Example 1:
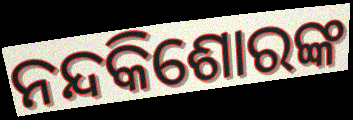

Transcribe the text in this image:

ନନ୍ଦକିଶୋରଙ୍କ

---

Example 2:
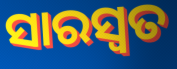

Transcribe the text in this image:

ସାରସ୍ବତ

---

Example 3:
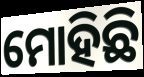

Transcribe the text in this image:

ମୋହିଛି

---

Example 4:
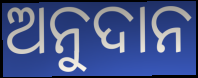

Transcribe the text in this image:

ଅନୁଦାନ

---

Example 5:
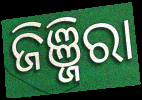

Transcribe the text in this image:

ଜିଞ୍ଜିରା